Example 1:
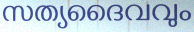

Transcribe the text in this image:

സത്യദൈവവും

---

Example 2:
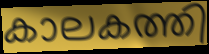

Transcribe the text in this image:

കാലകത്തി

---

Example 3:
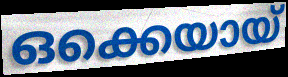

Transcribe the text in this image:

ഒക്കെയായ്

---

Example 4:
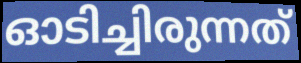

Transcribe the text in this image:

ഓടിച്ചിരുന്നത്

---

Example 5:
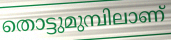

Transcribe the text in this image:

തൊട്ടുമുമ്പിലാണ്